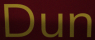
Dun